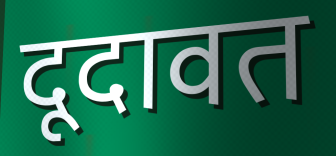
दूदावत